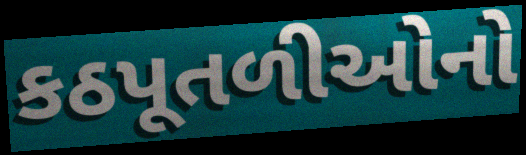
કઠપૂતળીઓનો